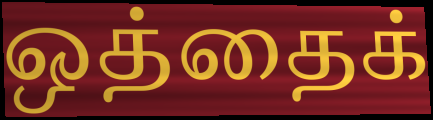
ஒத்தைக்